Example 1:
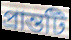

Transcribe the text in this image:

প্রান্তটি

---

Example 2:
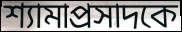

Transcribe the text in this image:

শ্যামাপ্রসাদকে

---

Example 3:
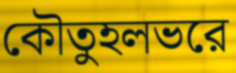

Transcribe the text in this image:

কৌতুহলভরে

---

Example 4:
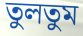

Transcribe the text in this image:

তুলতুম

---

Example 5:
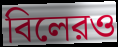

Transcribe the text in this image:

বিলেরও